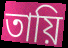
তায়ি